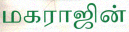
மகராஜின்